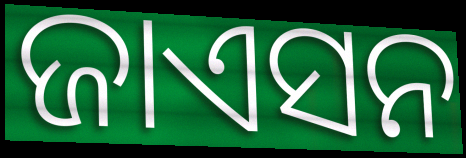
ଜାଏସନ